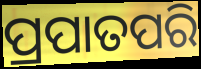
ପ୍ରପାତପରି